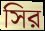
সির